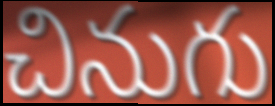
చినుగు